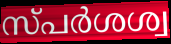
സ്പർശശ്വ